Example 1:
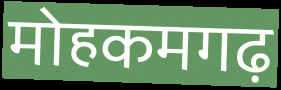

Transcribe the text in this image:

मोहकमगढ़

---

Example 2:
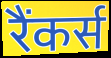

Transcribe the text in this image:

रैंकर्स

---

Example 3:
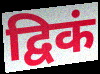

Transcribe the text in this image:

द्विकं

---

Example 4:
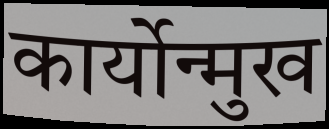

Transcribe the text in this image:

कार्योन्मुख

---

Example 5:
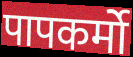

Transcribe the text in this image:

पापकर्मो